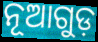
ନୂଆଗୁଡ଼